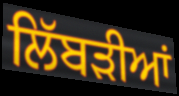
ਲਿੱਬੜੀਆਂ